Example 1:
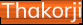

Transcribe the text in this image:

Thakorji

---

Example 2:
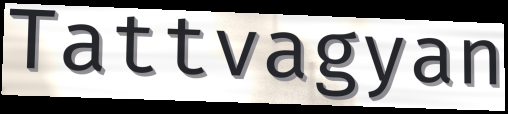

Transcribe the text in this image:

Tattvagyan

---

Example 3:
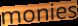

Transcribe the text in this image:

monies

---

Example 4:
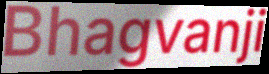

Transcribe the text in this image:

Bhagvanji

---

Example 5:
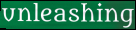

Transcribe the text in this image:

unleashing